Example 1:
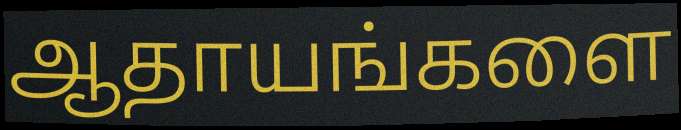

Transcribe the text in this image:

ஆதாயங்களை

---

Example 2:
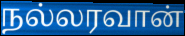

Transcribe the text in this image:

நல்லரவான்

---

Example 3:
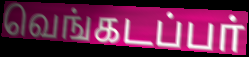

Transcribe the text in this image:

வெங்கடப்பர்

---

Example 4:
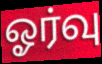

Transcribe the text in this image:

ஓர்வு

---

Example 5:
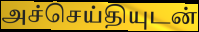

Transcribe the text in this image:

அச்செய்தியுடன்